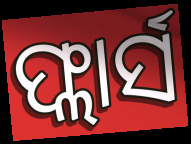
ଫ୍ଲାର୍ସ